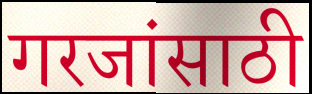
गरजांसाठी